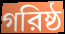
গরিষ্ঠ